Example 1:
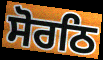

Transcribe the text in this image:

ਸੋਰਠਿ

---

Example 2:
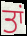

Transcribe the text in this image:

ਤਾਂ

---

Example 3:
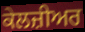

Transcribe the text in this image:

ਕੇਲਜ਼ੀਅਰ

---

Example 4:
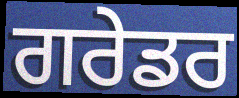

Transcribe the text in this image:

ਗਰੇਡਰ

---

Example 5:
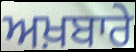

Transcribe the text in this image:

ਅਖ਼ਬਾਰੇ